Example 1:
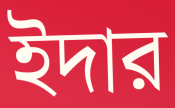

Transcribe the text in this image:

ইদার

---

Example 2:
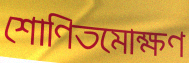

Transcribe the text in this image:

শোণিতমোক্ষণ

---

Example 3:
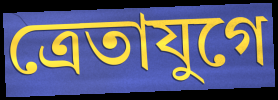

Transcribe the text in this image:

ত্রেতাযুগে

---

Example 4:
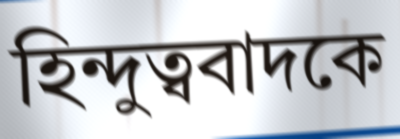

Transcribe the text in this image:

হিন্দুত্ববাদকে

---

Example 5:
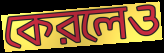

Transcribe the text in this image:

কেরলেও